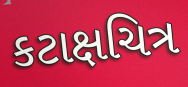
કટાક્ષચિત્ર